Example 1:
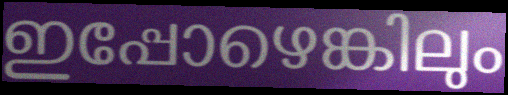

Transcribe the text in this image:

ഇപ്പോഴെങ്കിലും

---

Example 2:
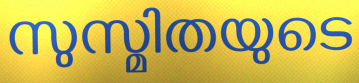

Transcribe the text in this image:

സുസ്മിതയുടെ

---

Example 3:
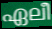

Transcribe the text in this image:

ഏലീ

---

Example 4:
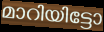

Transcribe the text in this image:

മാറിയിട്ടോ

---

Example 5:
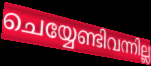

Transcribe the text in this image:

ചെയ്യേണ്ടിവന്നില്ല